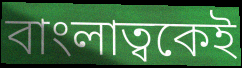
বাংলাত্বকেই